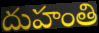
దుహంతి